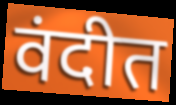
वंदीत